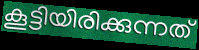
കൂട്ടിയിരിക്കുന്നത്